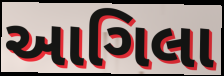
આગિલા